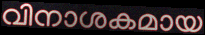
വിനാശകമായ